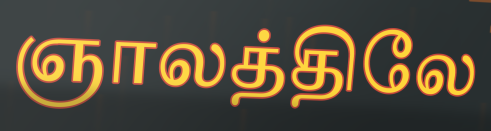
ஞாலத்திலே